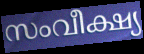
സംവീക്ഷ്യ